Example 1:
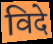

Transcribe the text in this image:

विदे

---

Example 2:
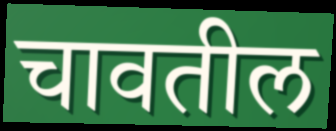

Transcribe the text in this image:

चावतील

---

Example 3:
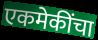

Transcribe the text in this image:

एकमेकींचा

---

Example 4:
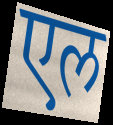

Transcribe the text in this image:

एल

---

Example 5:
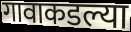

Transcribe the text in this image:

गावाकडल्या